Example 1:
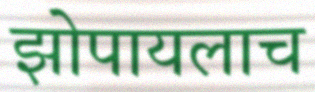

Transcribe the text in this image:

झोपायलाच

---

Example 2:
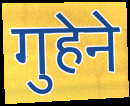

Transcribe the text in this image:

गुहेने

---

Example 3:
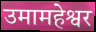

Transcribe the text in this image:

उमामहेश्वर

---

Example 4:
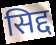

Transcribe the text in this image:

सिद्द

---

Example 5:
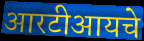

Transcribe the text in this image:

आरटीआयचे